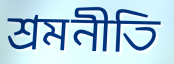
শ্রমনীতি